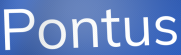
Pontus